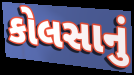
કોલસાનું